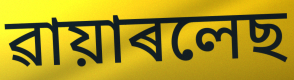
ৱায়াৰলেছ